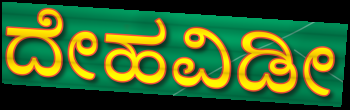
ದೇಹವಿಡೀ